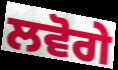
ਲਵੋਗੇ